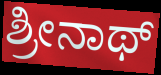
ಶ್ರೀನಾಥ್